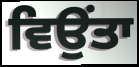
ਵਿਉਂਤਾ